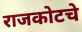
राजकोटचे